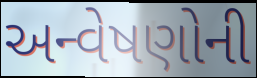
અન્વેષણોની